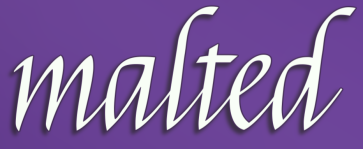
malted